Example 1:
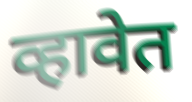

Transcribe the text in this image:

व्हावेत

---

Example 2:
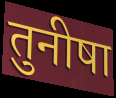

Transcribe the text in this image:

तुनीषा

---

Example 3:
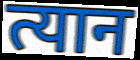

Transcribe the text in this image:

त्यान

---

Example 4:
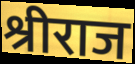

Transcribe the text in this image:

श्रीराज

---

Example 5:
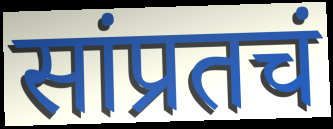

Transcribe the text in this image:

सांप्रतचं